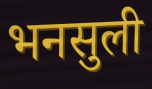
भनसुली